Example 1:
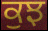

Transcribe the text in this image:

ਕੁਝ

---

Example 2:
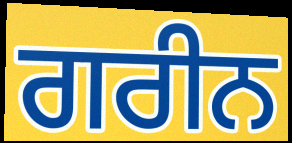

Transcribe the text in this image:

ਗਰੀਨ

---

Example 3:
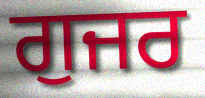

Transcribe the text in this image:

ਗੁਜਰ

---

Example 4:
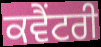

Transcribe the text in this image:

ਕਵੈਂਟਰੀ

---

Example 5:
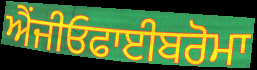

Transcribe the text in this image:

ਐਂਜੀਓਫਾਈਬਰੋਮਾ